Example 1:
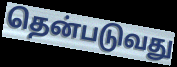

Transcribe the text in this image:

தென்படுவது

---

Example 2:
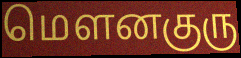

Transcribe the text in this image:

மௌனகுரு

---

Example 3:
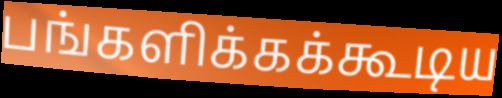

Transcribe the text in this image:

பங்களிக்கக்கூடிய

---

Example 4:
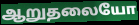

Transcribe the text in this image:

ஆறுதலையோ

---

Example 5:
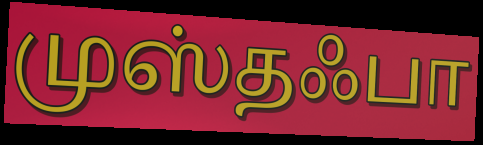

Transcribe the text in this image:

முஸ்தஃபா